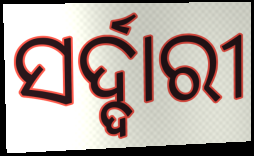
ସର୍ଦ୍ଦାରୀ